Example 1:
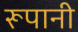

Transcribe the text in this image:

रूपानी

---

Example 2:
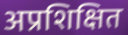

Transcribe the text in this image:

अप्रशिक्षित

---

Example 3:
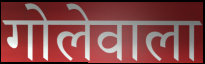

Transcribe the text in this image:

गोलेवाला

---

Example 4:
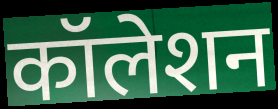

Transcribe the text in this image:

कॉलेशन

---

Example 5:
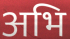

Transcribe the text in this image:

अभि